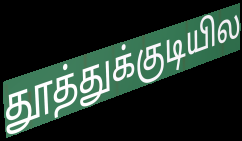
தூத்துக்குடியில